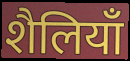
शैलियाँ